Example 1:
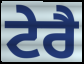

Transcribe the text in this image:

ਟੇਰੈ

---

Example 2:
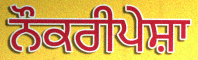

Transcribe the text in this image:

ਨੌਕਰੀਪੇਸ਼ਾ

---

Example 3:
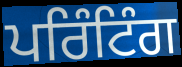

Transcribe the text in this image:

ਪਰਿੰਟਿੰਗ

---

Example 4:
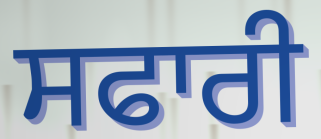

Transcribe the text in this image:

ਸਫਾਰੀ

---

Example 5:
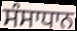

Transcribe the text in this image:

ਸੰਸਾਧਾਨ